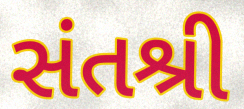
સંતશ્રી